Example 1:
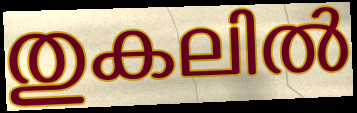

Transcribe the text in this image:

തുകലിൽ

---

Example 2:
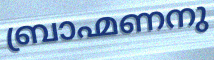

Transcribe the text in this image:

ബ്രാഹ്മണനു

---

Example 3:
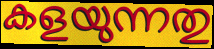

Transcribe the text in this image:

കളയുന്നതു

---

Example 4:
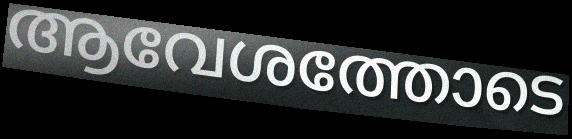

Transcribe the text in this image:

ആവേശത്തോടെ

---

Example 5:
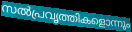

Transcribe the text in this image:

സൽപ്രവൃത്തികളൊന്നും